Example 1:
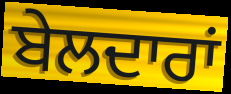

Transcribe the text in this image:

ਬੇਲਦਾਰਾਂ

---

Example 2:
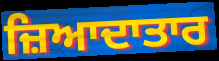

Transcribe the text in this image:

ਜ਼ਿਆਦਾਤਾਰ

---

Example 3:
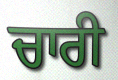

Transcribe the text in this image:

ਚਾਰੀ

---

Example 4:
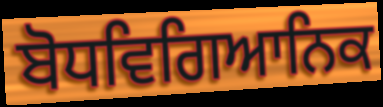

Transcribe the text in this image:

ਬੋਧਵਿਗਿਆਨਿਕ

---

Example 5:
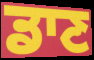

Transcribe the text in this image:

ਡਾਣ